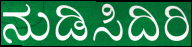
ನುಡಿಸಿದಿರಿ